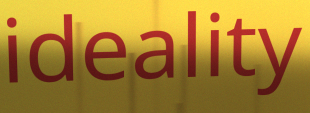
ideality